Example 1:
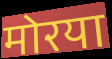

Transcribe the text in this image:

मोरया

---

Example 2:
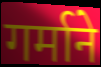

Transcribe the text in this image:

गर्माने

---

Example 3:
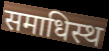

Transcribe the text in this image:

समाधिस्थ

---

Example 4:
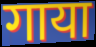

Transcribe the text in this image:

गाया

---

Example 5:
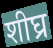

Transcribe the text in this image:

शीघ्र